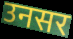
उनसर